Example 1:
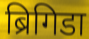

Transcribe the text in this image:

ब्रिगिडा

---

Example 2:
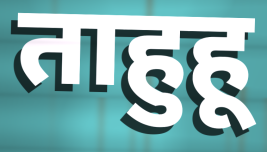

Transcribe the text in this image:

ताहुहू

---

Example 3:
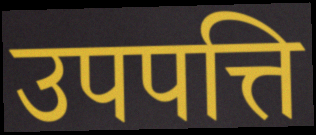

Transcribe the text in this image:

उपपत्ति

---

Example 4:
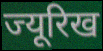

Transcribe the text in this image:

ज्यूरिख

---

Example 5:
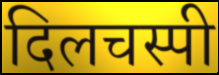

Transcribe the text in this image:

दिलचस्पी